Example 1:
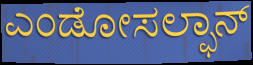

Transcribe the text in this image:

ಎಂಡೋಸಲ್ಫಾನ್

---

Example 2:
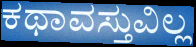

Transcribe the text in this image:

ಕಥಾವಸ್ತುವಿಲ್ಲ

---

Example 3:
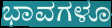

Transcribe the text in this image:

ಭಾವಗಳೂ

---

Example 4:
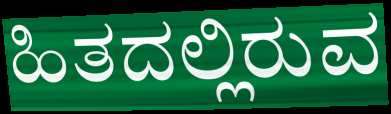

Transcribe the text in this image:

ಹಿತದಲ್ಲಿರುವ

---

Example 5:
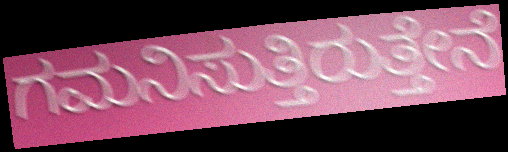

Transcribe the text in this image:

ಗಮನಿಸುತ್ತಿರುತ್ತೇನೆ